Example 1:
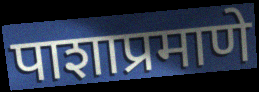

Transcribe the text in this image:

पाशाप्रमाणे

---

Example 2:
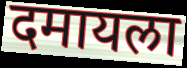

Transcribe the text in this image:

दमायला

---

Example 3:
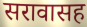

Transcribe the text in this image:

सरावासह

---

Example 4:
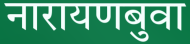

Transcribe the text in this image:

नारायणबुवा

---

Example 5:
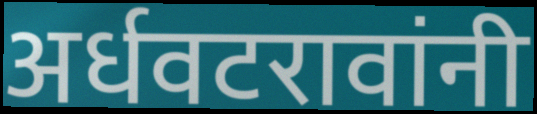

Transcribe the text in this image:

अर्धवटरावांनी